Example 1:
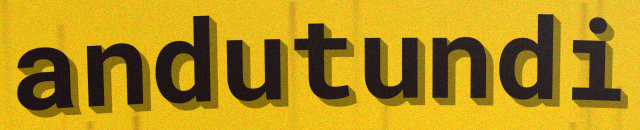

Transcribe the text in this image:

andutundi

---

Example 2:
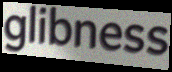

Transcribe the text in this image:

glibness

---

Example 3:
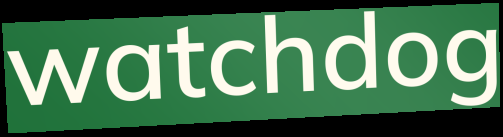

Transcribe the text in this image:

watchdog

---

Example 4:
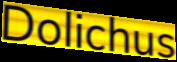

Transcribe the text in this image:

Dolichus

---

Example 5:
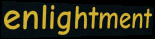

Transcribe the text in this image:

enlightment